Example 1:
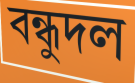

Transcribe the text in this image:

বন্ধুদল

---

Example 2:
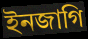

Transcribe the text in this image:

ইনজাগি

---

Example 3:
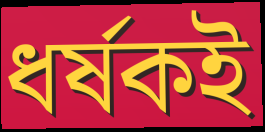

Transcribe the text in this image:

ধর্ষকই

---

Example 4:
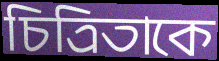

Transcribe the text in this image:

চিত্রিতাকে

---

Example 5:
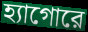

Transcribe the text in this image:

হ্যাগোরে